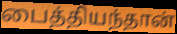
பைத்தியந்தான்